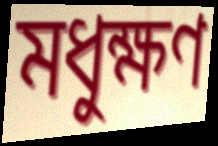
মধুক্ষণ